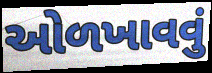
ઓળખાવવું